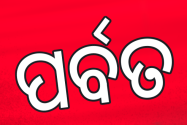
ପର୍ବତ